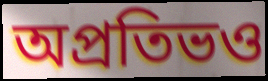
অপ্রতিভও